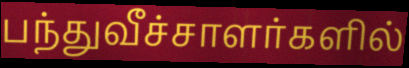
பந்துவீச்சாளர்களில்